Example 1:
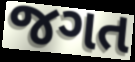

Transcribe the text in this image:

જગત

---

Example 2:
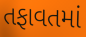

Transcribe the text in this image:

તફાવતમાં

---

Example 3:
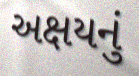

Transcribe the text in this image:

અક્ષયનું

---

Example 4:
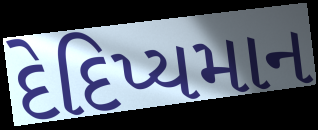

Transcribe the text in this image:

દેદિપ્યમાન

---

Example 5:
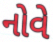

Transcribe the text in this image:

નોવે